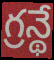
గ్రన్థే